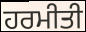
ਹਰਮੀਤੀ